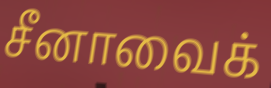
சீனாவைக்